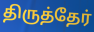
திருத்தேர்